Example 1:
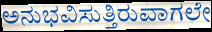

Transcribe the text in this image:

ಅನುಭವಿಸುತ್ತಿರುವಾಗಲೇ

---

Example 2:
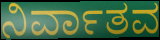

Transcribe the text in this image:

ನಿರ್ವಾತವ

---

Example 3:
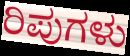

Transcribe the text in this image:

ರಿಪುಗಳು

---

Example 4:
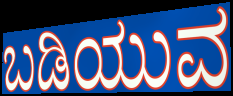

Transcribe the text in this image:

ಬಡಿಯುವ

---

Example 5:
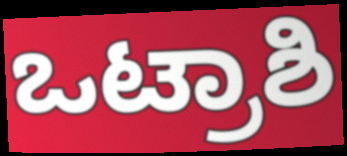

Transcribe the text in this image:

ಒಟ್ರಾಶಿ